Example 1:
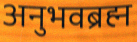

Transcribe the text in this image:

अनुभवब्रह्म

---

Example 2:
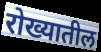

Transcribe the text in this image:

रोख्यातील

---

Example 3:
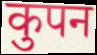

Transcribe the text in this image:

कुपन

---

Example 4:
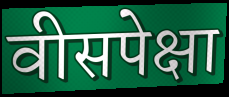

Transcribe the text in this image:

वीसपेक्षा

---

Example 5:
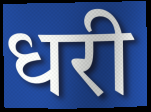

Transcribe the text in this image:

धरी